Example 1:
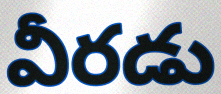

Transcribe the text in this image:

వీరడు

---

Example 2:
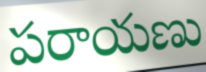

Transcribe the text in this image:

పరాయణు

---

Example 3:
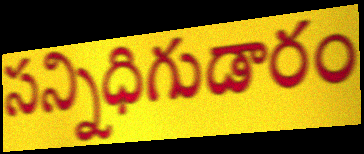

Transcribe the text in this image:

సన్నిధిగుడారం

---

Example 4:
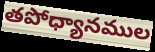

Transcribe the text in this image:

తపోధ్యానముల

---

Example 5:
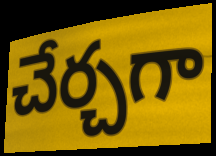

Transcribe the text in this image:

చేర్చగా